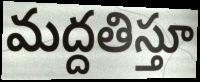
మద్దతిస్తూ